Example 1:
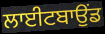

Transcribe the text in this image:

ਲਾਈਟਬਾਉਂਡ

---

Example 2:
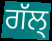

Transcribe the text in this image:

ਗੱਲ੍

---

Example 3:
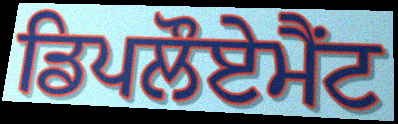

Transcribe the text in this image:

ਡਿਪਲੌਏਮੈਂਟ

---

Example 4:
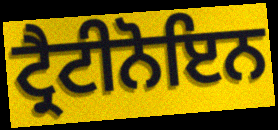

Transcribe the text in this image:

ਟ੍ਰੈਟੀਨੋਇਨ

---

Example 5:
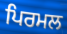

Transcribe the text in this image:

ਪਿਰਮਲ